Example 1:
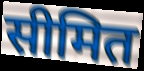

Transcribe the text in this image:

सीमित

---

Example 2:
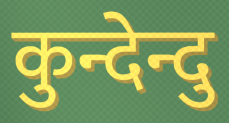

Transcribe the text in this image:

कुन्देन्दु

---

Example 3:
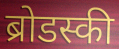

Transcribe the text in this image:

ब्रोडस्की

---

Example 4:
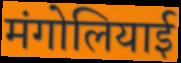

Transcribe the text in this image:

मंगोलियाई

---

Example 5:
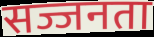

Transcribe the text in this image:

सज्जनता